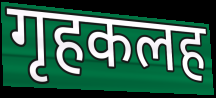
गृहकलह